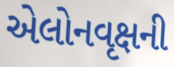
એલોનવૃક્ષની